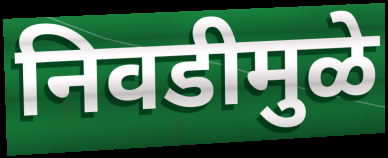
निवडीमुळे